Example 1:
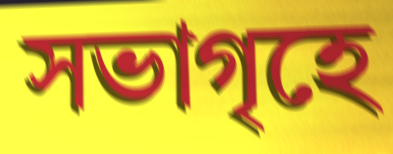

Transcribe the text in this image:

সভাগৃহে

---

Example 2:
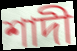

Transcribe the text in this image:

শাদী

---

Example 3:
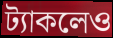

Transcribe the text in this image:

ট্যাকলেও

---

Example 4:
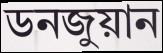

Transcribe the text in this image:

ডনজুয়ান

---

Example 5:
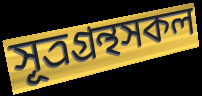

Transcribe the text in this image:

সূত্রগ্রন্থসকল